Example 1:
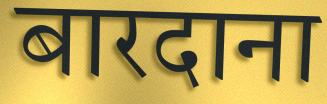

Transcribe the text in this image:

बारदाना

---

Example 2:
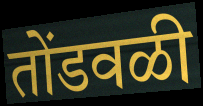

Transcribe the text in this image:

तोंडवळी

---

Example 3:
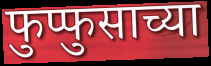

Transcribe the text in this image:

फुप्फुसाच्या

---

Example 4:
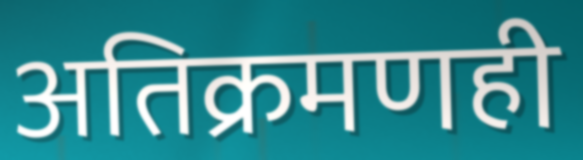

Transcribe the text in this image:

अतिक्रमणही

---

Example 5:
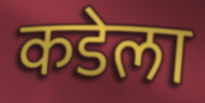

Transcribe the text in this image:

कडेला